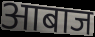
आबाज